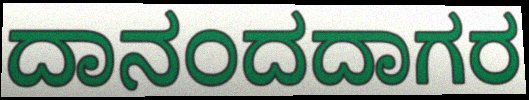
ದಾನಂದದಾಗರ